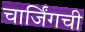
चार्जिंगची